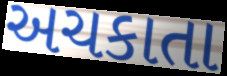
અચકાતા